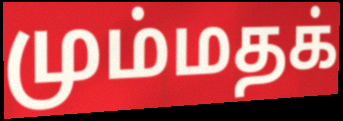
மும்மதக்